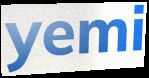
yemi